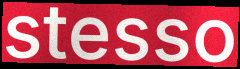
stesso